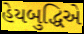
હેયબુદ્ધિએ